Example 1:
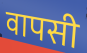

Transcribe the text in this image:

वापसी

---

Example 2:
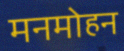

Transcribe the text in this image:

मनमोहन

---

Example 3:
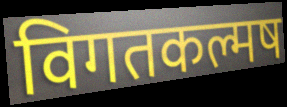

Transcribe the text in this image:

विगतकल्मष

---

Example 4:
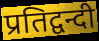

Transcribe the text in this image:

प्रतिद्वन्दी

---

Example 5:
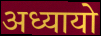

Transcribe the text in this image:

अध्यायो